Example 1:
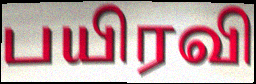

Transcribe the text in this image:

பயிரவி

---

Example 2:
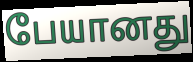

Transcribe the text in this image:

பேயானது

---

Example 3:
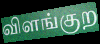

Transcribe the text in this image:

விளங்குற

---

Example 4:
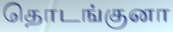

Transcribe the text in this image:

தொடங்குனா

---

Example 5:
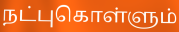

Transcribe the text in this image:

நட்புகொள்ளும்